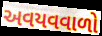
અવયવવાળો